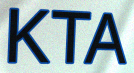
KTA